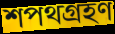
শপথগ্রহণ